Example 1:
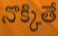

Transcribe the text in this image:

నొక్కితే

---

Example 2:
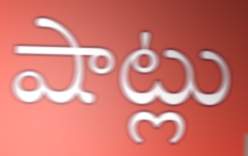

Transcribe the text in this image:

షాట్లు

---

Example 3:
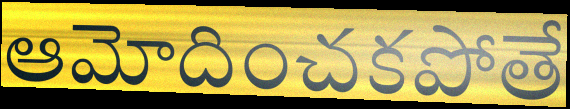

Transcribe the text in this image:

ఆమోదించకపోతే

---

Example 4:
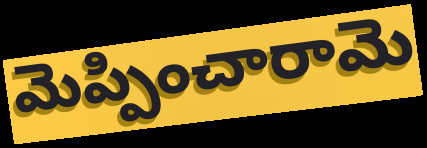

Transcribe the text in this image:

మెప్పించారామె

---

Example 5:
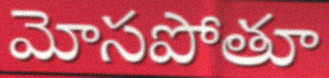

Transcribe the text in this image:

మోసపోతూ